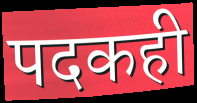
पदकही